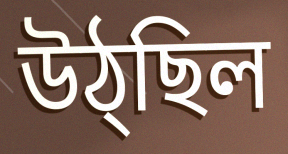
উঠ্ছিল